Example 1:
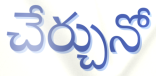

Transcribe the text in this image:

చేర్చునో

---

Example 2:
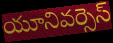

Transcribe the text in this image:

యూనివర్సెస్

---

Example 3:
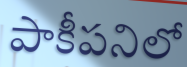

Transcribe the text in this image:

పాకీపనిలో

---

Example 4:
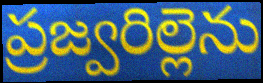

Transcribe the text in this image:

ప్రజ్వరిల్లెను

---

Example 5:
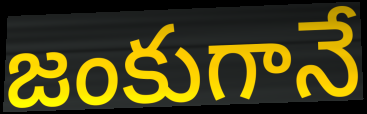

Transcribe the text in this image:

జంకుగానే